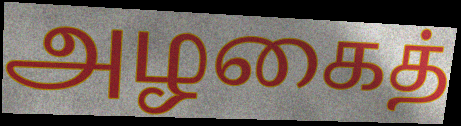
அழகைத்